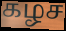
கழச